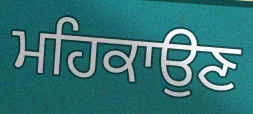
ਮਹਿਕਾਉਣ